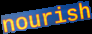
nourish